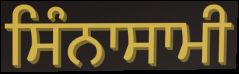
ਸਿੰਨਾਸਾਮੀ